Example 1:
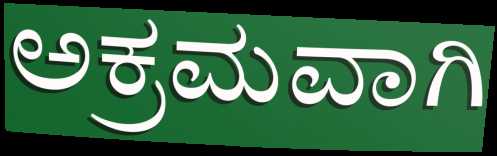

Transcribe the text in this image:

ಅಕ್ರಮವಾಗಿ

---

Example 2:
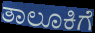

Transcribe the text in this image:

ತಾಲೂಕಿಗೆ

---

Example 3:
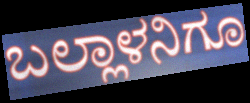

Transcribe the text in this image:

ಬಲ್ಲಾಳನಿಗೂ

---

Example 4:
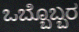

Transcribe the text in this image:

ಒಬ್ಬೊಬ್ಬರ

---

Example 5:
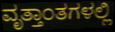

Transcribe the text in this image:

ವೃತ್ತಾಂತಗಳಲ್ಲಿ